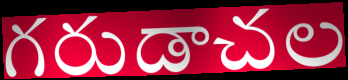
గరుడాచల